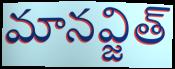
మానవ్జిత్